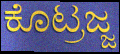
ಕೊಟ್ರಜ್ಜ